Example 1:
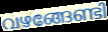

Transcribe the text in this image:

വഴങ്ങേണ്ടി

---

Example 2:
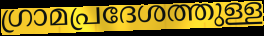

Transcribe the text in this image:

ഗ്രാമപ്രദേശത്തുള്ള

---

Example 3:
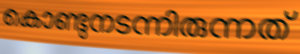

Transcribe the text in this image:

കൊണ്ടുനടന്നിരുന്നത്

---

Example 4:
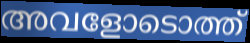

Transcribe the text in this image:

അവളോടൊത്ത്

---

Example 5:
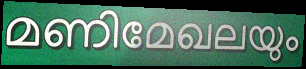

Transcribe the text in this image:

മണിമേഖലയും